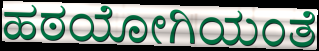
ಹಠಯೋಗಿಯಂತೆ